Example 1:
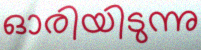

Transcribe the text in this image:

ഓരിയിടുന്നു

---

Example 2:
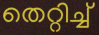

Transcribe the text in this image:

തെറ്റിച്ച്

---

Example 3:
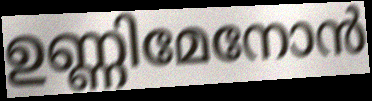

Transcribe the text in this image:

ഉണ്ണിമേനോൻ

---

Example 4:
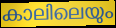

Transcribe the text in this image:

കാലിലെയും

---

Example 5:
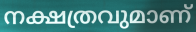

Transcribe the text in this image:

നക്ഷത്രവുമാണ്